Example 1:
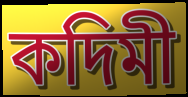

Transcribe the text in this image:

কদিমী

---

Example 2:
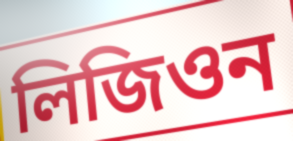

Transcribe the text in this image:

লিজিওন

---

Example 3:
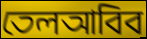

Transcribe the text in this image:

তেলআবিব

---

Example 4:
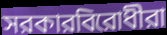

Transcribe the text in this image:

সরকারবিরোধীরা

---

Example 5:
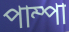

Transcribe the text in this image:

পাম্পা